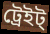
ট্রেইট্